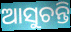
ଆସୁଚନ୍ତି